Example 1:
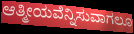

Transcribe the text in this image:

ಆತ್ಮೀಯವೆನ್ನಿಸುವಾಗಲೂ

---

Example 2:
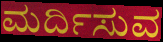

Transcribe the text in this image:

ಮರ್ದಿಸುವ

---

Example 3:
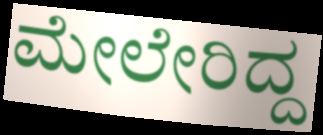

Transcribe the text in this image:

ಮೇಲೇರಿದ್ದ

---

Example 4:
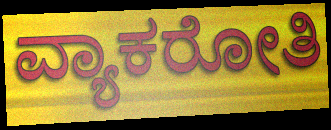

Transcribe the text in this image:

ವ್ಯಾಕರೋತಿ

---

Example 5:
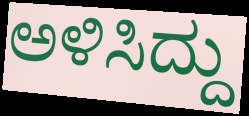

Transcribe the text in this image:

ಅಳಿಸಿದ್ದು